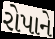
રોપાને